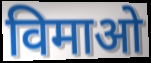
विमाओ